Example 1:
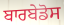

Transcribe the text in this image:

ਬਾਰਬੇਡੋਸ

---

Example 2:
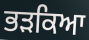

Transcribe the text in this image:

ਭੜਕਿਆ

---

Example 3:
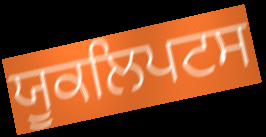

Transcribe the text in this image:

ਯੂਕਲਿਪਟਸ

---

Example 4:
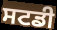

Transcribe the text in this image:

ਸਟਡੀ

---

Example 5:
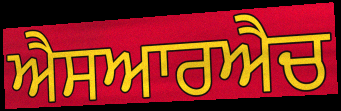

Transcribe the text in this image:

ਐਸਆਰਐਚ